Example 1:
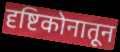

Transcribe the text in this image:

दृष्टिकोनातून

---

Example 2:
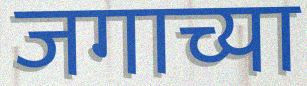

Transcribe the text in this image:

जगाच्या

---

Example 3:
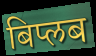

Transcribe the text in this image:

बिप्लब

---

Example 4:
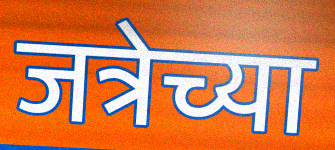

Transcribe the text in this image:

जत्रेच्या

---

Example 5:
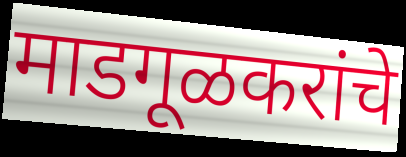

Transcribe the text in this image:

माडगूळकरांचे